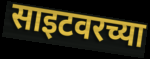
साइटवरच्या